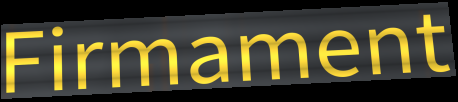
Firmament